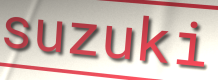
suzuki